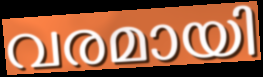
വരമായി